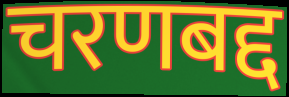
चरणबद्द